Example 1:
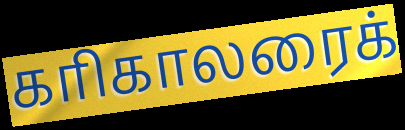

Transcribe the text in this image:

கரிகாலரைக்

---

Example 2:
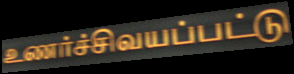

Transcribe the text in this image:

உணர்ச்சிவயப்பட்டு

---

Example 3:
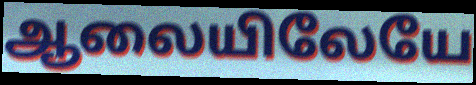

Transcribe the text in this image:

ஆலையிலேயே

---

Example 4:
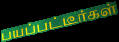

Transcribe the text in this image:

பயப்பட்டீர்கள்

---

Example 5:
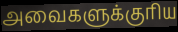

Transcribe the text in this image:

அவைகளுக்குரிய